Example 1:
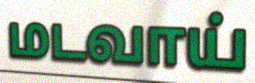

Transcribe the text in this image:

மடவாய்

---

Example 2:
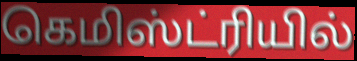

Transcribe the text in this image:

கெமிஸ்ட்ரியில்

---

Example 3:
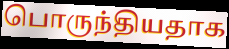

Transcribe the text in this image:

பொருந்தியதாக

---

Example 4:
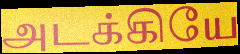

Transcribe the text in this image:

அடக்கியே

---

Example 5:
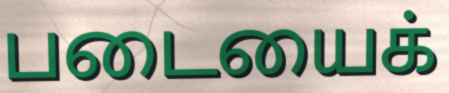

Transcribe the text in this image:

படையைக்